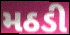
મઠડી